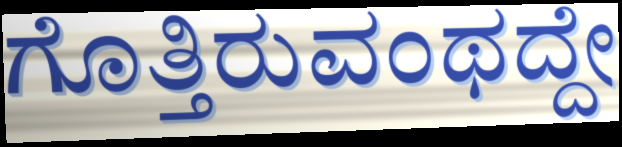
ಗೊತ್ತಿರುವಂಥದ್ದೇ